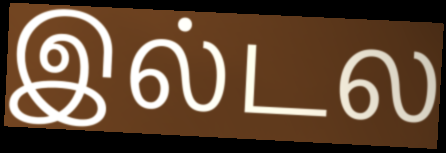
இல்டல